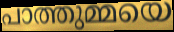
പാത്തുമ്മയെ